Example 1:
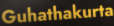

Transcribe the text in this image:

Guhathakurta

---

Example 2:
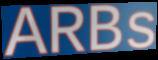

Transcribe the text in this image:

ARBs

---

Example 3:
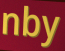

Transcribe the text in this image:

nby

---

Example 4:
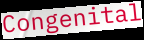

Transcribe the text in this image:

Congenital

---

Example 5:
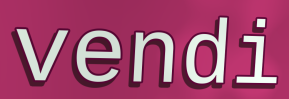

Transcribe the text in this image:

vendi